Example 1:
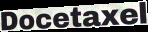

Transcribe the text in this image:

Docetaxel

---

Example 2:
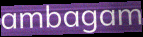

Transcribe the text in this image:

ambagam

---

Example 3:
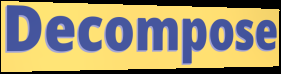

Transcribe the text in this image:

Decompose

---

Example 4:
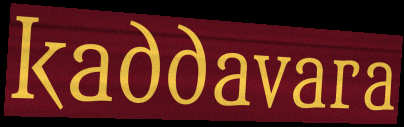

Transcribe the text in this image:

kaddavara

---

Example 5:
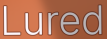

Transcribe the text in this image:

Lured